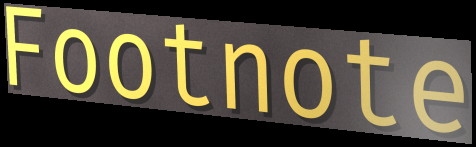
Footnote